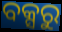
ବକ୍ସରୁ